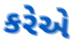
કરેએ